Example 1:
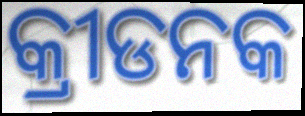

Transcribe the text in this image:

କ୍ରୀଡନକ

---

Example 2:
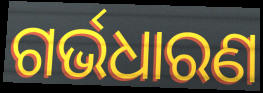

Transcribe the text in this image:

ଗର୍ଭଧାରଣ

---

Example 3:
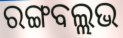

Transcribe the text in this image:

ରଙ୍ଗବଲ୍ଲଭ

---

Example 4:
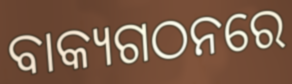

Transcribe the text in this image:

ବାକ୍ୟଗଠନରେ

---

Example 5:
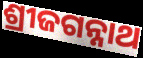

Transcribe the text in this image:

ଶ୍ରୀଜଗନ୍ନାଥ